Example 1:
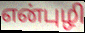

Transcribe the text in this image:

என்புழி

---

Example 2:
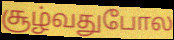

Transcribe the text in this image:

சூழ்வதுபோல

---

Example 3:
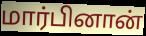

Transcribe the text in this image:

மார்பினான்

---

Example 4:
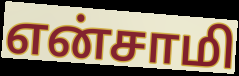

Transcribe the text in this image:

என்சாமி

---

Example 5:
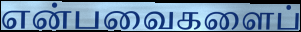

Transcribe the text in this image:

என்பவைகளைப்